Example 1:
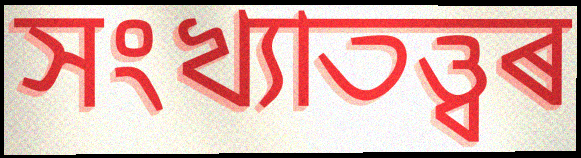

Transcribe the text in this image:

সংখ্যাতত্ত্বৰ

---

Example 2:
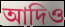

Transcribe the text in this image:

আদিও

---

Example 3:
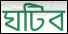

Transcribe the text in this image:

ঘটিব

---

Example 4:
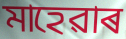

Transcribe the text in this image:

মাহেৱাৰ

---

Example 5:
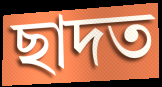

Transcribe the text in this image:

ছাদত